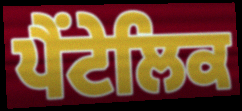
ਪੈਂਟੇਲਿਕ